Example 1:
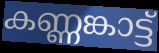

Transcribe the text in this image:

കണ്ണങ്കാട്ട്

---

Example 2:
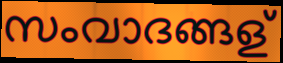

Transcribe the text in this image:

സംവാദങ്ങള്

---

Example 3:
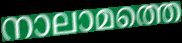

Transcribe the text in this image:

നാലാമത്തെ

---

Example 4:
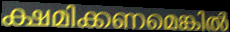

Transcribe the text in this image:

ക്ഷമിക്കണമെങ്കിൽ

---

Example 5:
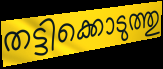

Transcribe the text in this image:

തട്ടിക്കൊടുത്തു